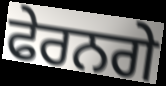
ਫੇਰਨਗੇ